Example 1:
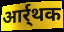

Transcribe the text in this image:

आर्र्थक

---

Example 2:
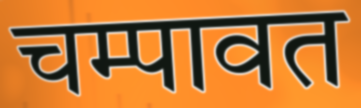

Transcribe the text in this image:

चम्पावत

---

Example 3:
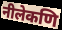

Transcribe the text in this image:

नीलेकणि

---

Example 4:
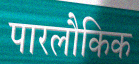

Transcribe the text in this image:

पारलौकिक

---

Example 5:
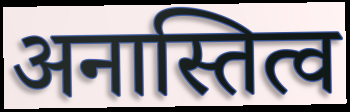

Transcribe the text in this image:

अनास्तित्व